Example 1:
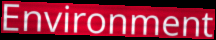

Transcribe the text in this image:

Environment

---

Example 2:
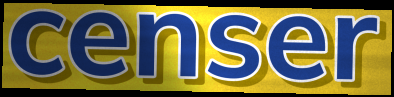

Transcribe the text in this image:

censer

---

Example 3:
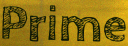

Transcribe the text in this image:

Prime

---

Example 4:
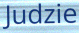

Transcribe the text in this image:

Judzie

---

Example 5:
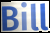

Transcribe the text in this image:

Bill